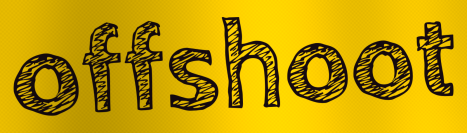
offshoot